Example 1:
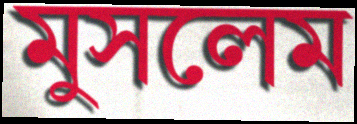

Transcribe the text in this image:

মুসলেম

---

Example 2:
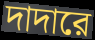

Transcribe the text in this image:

দাদারে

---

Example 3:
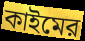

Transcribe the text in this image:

কাইমের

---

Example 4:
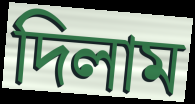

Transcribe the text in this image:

দিলাম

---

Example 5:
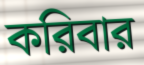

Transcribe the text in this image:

করিবার